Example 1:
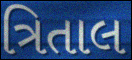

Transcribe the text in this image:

ત્રિતાલ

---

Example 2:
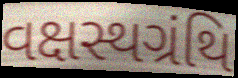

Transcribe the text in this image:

વક્ષસ્થગ્રંથિ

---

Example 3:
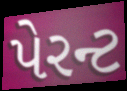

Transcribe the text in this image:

પેરન્ટ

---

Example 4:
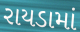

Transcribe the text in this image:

રાયડામાં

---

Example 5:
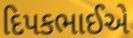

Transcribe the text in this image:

દિપકભાઈએ